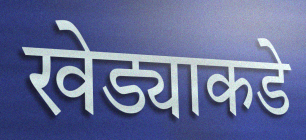
खेड्याकडे